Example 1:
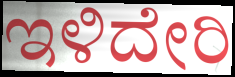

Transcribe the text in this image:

ಇಳಿದೇರಿ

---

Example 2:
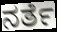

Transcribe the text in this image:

ನರ್ತೆ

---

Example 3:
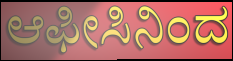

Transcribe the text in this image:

ಆಫೀಸಿನಿಂದ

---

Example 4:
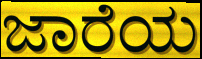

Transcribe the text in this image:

ಜಾರೆಯ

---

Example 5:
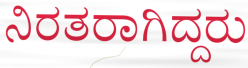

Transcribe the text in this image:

ನಿರತರಾಗಿದ್ದರು